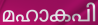
മഹാകപി